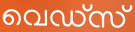
വെഡ്സ്